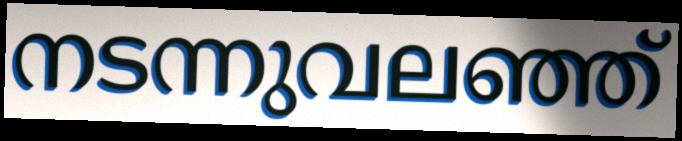
നടന്നുവലഞ്ഞ്